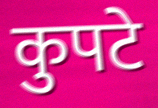
कुपटे